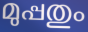
മുപ്പതും